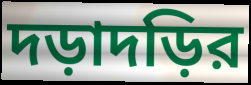
দড়াদড়ির